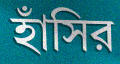
হাঁসির